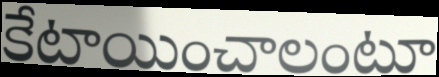
కేటాయించాలంటూ